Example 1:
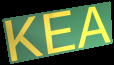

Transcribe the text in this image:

KEA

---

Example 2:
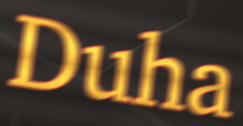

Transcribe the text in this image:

Duha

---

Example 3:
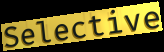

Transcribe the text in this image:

Selective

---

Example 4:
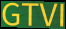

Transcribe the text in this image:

GTVI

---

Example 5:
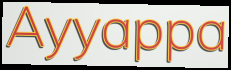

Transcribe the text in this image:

Ayyappa